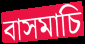
বাসমাচি